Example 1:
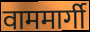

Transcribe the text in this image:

वाममार्गी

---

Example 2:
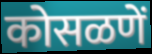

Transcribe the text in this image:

कोसळणें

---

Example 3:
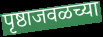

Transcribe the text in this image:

पृष्ठाजवळच्या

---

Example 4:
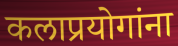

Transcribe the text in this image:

कलाप्रयोगांना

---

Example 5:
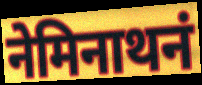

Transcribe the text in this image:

नेमिनाथनं